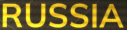
RUSSIA